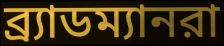
ব্র্যাডম্যানরা